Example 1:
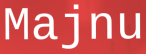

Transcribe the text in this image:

Majnu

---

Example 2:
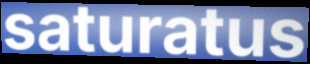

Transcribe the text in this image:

saturatus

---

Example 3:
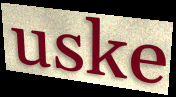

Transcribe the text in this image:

uske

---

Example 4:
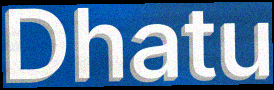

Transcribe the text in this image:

Dhatu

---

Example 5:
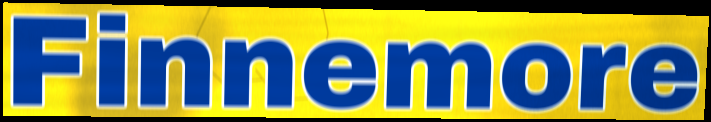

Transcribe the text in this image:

Finnemore